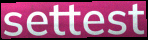
settest